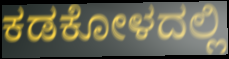
ಕಡಕೋಳದಲ್ಲಿ